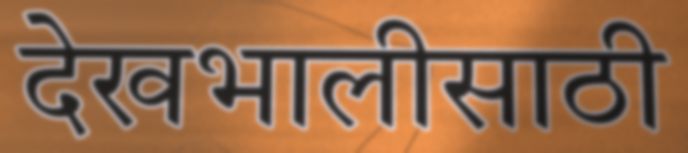
देखभालीसाठी